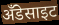
अँडेसाइट